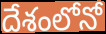
దేశంలోనో